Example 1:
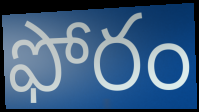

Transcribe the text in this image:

ఫోరం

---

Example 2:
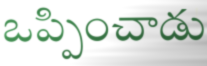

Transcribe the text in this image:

ఒప్పించాడు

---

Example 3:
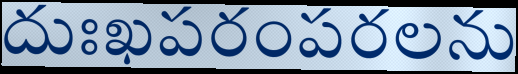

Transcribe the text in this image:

దుఃఖపరంపరలను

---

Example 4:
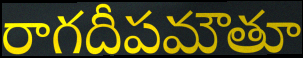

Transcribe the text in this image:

రాగదీపమౌతూ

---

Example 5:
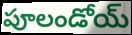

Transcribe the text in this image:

పూలండోయ్